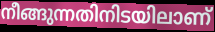
നീങ്ങുന്നതിനിടയിലാണ്